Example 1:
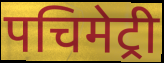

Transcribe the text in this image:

पचिमेट्री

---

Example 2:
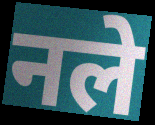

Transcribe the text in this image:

नले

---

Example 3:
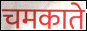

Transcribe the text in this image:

चमकाते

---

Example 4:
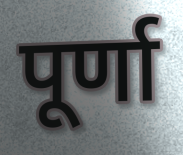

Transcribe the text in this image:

पूर्णा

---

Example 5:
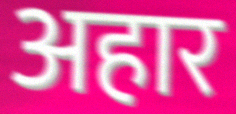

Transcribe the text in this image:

अहार